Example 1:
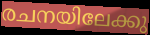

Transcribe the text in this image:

രചനയിലേക്കു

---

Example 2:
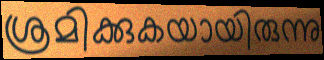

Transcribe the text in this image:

ശ്രമിക്കുകയായിരുന്നു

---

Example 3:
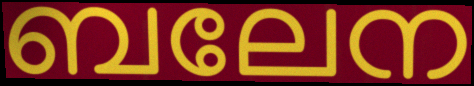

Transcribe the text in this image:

ബലേന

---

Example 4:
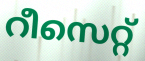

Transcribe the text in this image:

റീസെറ്റ്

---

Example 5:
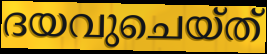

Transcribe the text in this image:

ദയവുചെയ്ത്